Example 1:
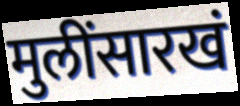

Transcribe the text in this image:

मुलींसारखं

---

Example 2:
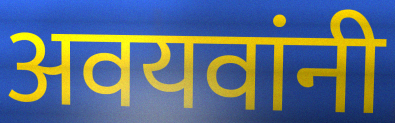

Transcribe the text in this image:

अवयवांनी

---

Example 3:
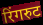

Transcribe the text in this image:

रिंगरुट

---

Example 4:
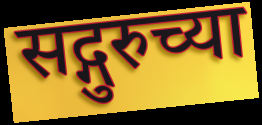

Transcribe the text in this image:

सद्गुरुच्या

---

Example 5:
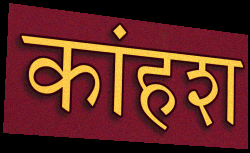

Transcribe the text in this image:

कांहश